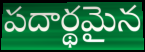
పదార్థమైన